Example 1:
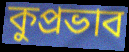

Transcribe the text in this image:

কুপ্রভাব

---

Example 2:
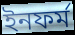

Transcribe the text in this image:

ইনফর্ম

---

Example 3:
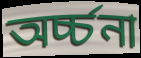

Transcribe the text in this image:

অর্চ্চনা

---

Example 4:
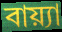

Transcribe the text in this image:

বায়্যা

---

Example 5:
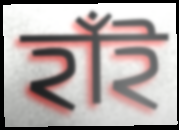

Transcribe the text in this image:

হাঁই